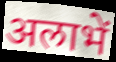
अलाभें